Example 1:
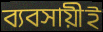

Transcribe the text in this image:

ব্যবসায়ীই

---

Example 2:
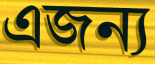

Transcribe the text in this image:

এজন্য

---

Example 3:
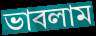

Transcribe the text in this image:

ভাবলাম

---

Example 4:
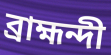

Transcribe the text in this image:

ব্রাহ্মন্দী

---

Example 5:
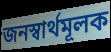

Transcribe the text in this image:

জনস্বার্থমূলক